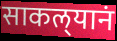
साकल्यानं